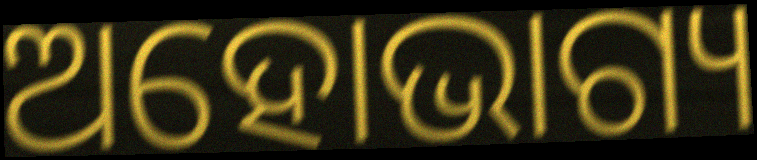
ଅହୋଭାଗ୍ୟ